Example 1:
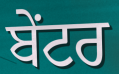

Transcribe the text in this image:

ਬੇਂਟਰ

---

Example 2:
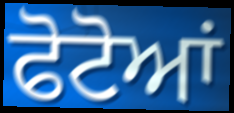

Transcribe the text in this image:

ਫੋਟੋਆਂ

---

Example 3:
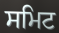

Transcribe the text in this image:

ਸਮਿਟ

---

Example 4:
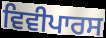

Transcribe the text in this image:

ਵਿਵੀਪਾਰਸ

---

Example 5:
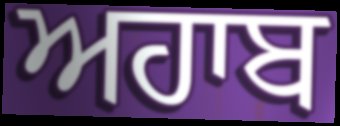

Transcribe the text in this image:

ਅਹਾਬ